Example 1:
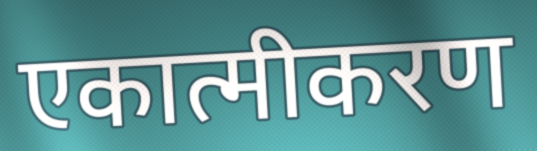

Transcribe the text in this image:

एकात्मीकरण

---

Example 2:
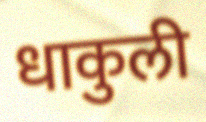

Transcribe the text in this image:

धाकुली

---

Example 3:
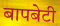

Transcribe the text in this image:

बापबेटी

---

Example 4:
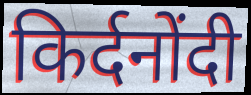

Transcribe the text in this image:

किर्दनोंदी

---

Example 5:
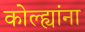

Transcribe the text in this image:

कोल्ह्यांना